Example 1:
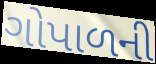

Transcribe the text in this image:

ગોપાળની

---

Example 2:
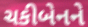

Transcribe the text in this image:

ચકીબેનને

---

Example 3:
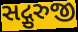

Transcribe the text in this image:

સદ્ગુરુજી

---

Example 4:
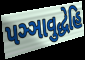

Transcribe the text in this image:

પઞ્ઞાવુદ્ધેહિ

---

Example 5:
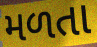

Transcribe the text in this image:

મળતા